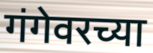
गंगेवरच्या